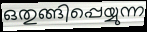
ഒതുങ്ങിപ്പെയ്യുന്ന